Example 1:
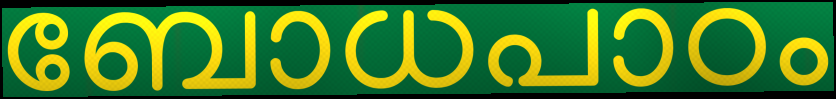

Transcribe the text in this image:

ബോധപാഠം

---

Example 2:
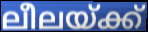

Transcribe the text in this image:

ലീലയ്ക്ക്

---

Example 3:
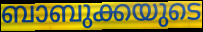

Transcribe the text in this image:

ബാബുക്കയുടെ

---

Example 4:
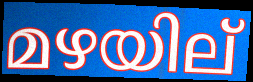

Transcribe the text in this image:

മഴയില്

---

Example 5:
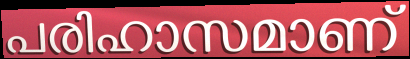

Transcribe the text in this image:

പരിഹാസമാണ്